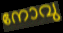
നോവു